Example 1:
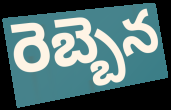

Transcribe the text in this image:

రెబ్బెన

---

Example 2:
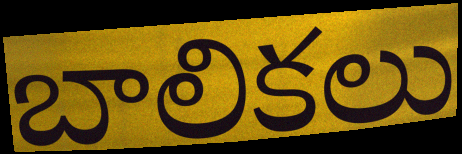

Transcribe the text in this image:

బాలికలు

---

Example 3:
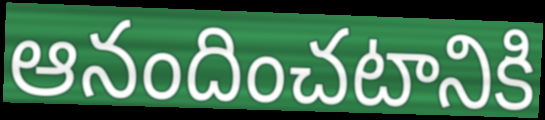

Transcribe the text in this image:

ఆనందించటానికి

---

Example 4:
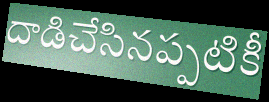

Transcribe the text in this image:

దాడిచేసినప్పటికీ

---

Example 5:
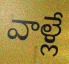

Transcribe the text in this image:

వాళ్లే